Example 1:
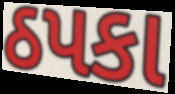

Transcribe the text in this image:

ઠપકા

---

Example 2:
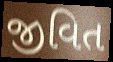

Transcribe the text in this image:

જીવિત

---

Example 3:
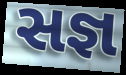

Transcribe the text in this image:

સજ્ઞ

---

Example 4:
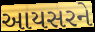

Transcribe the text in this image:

આયસરને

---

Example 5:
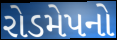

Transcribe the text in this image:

રોડમેપનો